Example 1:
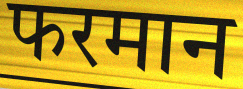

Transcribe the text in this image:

फरमान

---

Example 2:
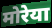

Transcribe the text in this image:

मोरेया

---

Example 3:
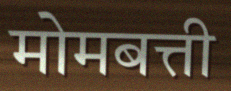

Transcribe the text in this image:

मोमबत्ती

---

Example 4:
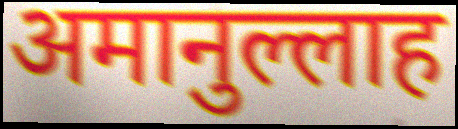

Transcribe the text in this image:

अमानुल्लाह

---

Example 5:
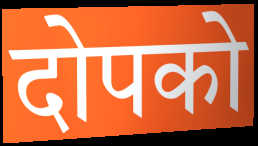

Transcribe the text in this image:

दोपको